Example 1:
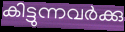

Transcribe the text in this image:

കിട്ടുന്നവർക്കു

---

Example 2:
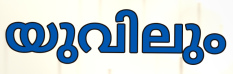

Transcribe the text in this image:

യുവിലും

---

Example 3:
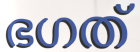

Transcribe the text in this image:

ഭഗത്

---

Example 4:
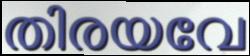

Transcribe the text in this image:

തിരയവേ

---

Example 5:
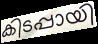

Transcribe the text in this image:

കിടപ്പായി